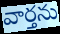
వార్తను